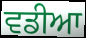
ਵਡੀਆ